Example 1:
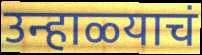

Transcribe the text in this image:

उन्हाळ्याचं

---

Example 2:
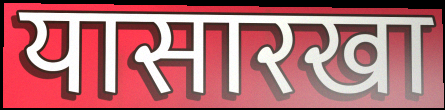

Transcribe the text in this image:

यासारखा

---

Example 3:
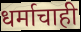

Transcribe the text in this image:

धर्माचाही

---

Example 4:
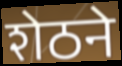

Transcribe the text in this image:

शेठने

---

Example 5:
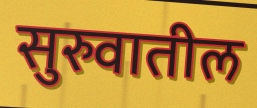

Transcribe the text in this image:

सुरुवातील